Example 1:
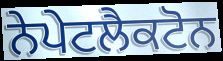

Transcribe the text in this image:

ਨੇਪੇਟਲੈਕਟੋਨ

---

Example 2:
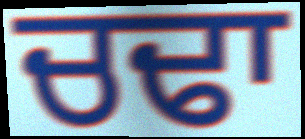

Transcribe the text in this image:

ਚਢਾ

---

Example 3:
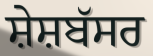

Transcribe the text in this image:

ਸ਼ੇਸ਼ਬੱਸਰ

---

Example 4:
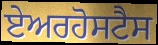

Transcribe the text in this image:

ਏਅਰਹੋਸਟੈਸ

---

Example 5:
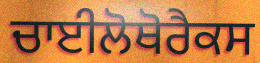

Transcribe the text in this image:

ਚਾਈਲੋਥੋਰੈਕਸ